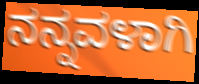
ನನ್ನವಳಾಗಿ